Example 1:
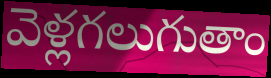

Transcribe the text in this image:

వెళ్లగలుగుతాం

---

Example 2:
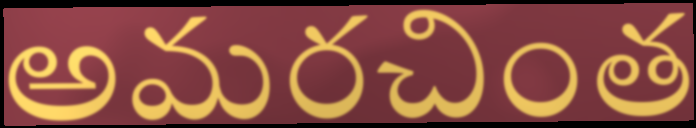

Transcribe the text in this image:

అమరచింత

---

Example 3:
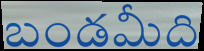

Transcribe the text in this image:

బండమీది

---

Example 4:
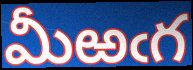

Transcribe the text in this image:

మీఱఁగ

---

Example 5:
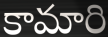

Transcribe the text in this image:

కామారి